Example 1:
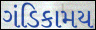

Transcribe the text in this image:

ગંડિકામય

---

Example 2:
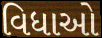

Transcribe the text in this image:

વિધાઓ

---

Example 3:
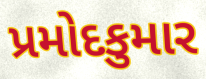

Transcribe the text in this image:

પ્રમોદકુમાર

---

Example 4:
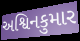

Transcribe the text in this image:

અશ્વિનકુમાર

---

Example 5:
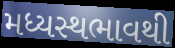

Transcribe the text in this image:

મધ્યસ્થભાવથી